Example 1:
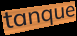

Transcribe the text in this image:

tanque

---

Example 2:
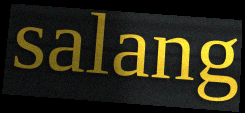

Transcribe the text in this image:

salang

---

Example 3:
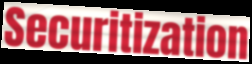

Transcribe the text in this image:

Securitization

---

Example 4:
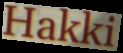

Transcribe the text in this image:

Hakki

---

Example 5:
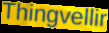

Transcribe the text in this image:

Thingvellir